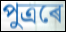
পুত্ৰৰে